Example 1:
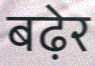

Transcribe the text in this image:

बढ़ेर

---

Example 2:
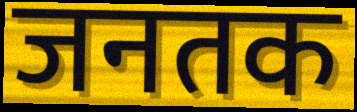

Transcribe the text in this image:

जनतक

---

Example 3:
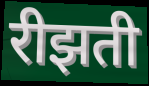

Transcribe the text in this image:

रीझती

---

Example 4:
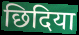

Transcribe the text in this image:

छिदिया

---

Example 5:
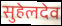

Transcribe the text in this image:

सुहेलदेव